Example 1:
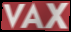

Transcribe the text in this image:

VAX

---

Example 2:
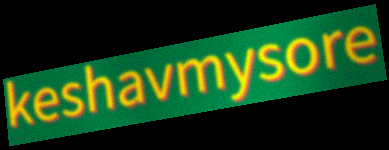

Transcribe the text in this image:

keshavmysore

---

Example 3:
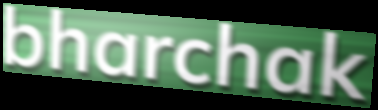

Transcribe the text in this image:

bharchak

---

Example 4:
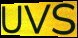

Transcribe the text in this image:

UVS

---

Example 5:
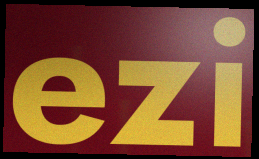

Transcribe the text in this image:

ezi